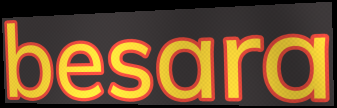
besara